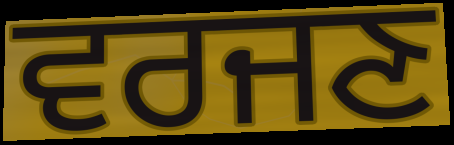
ਵਰਜਣ